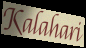
Kalahari